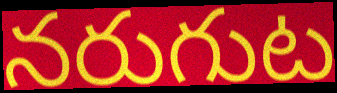
నరుగుట